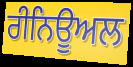
ਰੀਨਿਊਅਲ